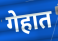
गेहात